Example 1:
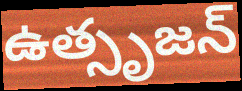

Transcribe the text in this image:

ఉత్సృజన్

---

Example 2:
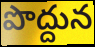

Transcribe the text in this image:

పొద్దున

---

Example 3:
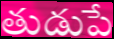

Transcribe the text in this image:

తుడుపే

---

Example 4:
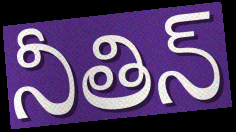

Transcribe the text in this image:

నీతిన్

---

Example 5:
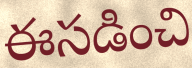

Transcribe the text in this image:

ఈసడించి